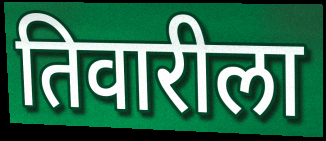
तिवारीला